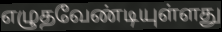
எழுதவேண்டியுள்ளது